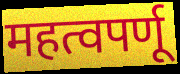
महत्‍वपर्णू